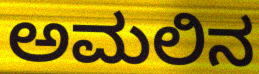
ಅಮಲಿನ